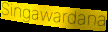
Singawardana